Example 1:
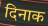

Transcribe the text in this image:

दिनाक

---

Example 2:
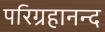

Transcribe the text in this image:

परिग्रहानन्द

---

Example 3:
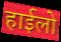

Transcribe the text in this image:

हाईलो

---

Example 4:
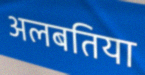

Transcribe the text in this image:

अलबतिया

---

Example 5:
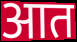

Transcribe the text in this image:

आत